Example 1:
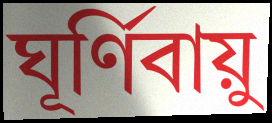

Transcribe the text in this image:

ঘূর্ণিবায়ু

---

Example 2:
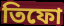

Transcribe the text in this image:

তিফো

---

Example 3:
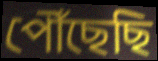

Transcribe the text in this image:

পৌঁছেছি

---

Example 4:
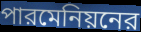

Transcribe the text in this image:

পারমেনিয়নের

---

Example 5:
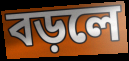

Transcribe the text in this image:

বড়লে